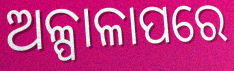
ଅଳ୍ପାଳାପରେ